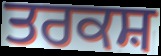
ਤਰਕਸ਼